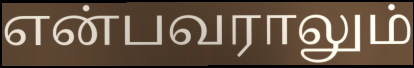
என்பவராலும்